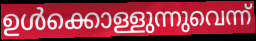
ഉൾക്കൊള്ളുന്നുവെന്ന്